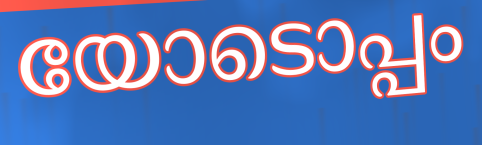
യോടൊപ്പം